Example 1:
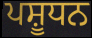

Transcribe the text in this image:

ਪਸ਼ੂਧਨ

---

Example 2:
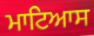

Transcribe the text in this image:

ਮਾਟਿਆਸ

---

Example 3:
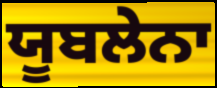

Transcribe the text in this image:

ਯੂਬਲੇਨਾ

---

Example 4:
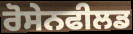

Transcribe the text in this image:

ਰੋਸੇਨਫੀਲਡ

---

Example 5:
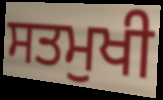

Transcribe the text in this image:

ਸਤਮੁਖੀ